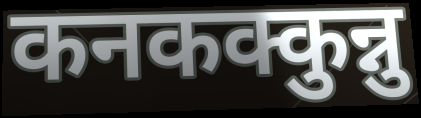
कनकक्कुन्नु